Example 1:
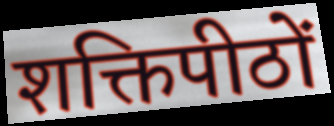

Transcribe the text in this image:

शक्तिपीठों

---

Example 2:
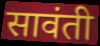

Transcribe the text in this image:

सावंती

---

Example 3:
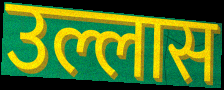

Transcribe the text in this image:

उल्लास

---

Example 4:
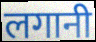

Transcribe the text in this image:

लगानी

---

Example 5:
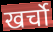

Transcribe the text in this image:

खर्चो